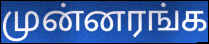
முன்னரங்க